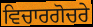
ਵਿਚਾਰਗੋਚਰੇ